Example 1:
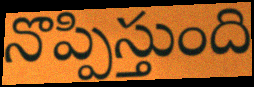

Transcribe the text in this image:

నొప్పిస్తుంది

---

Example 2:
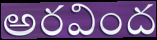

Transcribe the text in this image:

అరవింద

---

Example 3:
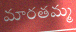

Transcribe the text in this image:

మారతమ్మ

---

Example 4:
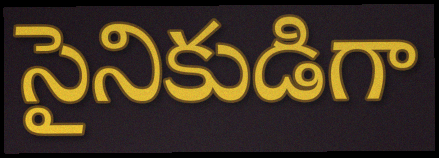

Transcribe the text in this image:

సైనికుడిగా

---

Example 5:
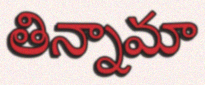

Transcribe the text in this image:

తిన్నామా